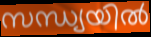
സന്ധ്യയിൽ